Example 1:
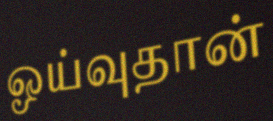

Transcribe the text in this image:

ஓய்வுதான்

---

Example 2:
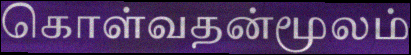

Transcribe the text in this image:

கொள்வதன்மூலம்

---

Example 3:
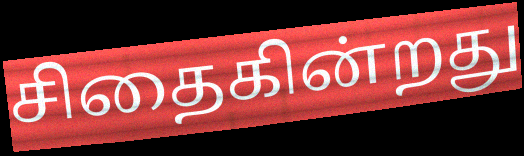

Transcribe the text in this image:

சிதைகின்றது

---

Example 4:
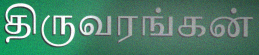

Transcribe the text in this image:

திருவரங்கன்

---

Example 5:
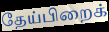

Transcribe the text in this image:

தேய்பிறைக்